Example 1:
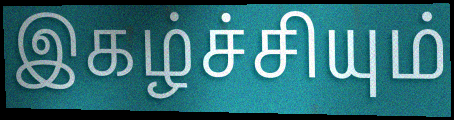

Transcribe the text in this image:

இகழ்ச்சியும்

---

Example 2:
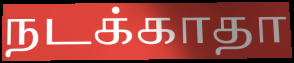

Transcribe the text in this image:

நடக்காதா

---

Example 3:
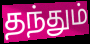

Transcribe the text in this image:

தந்தும்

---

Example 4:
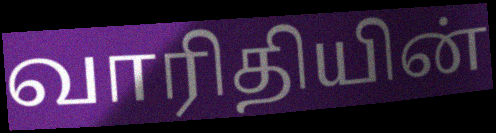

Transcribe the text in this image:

வாரிதியின்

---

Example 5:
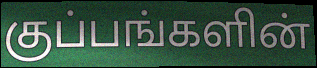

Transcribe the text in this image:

குப்பங்களின்